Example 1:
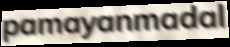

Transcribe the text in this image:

pamayanmadal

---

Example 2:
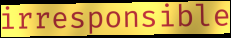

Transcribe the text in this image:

irresponsible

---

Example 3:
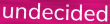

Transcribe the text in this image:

undecided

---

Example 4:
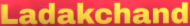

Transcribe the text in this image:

Ladakchand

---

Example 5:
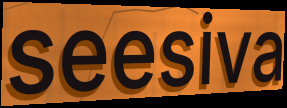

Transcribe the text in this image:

seesiva